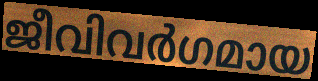
ജീവിവർഗമായ